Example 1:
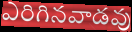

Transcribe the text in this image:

ఎరిగినవాడవు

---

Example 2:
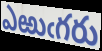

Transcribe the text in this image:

ఎఱుఁగరు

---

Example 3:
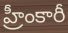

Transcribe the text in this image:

హ్రీంకారీ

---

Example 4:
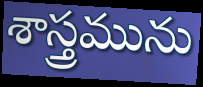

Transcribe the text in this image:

శాస్త్రమును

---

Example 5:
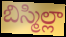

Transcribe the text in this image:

బిస్మిల్లా